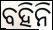
ବହିନି